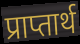
प्राप्तार्थ